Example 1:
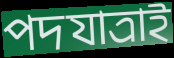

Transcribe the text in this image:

পদযাত্রাই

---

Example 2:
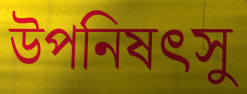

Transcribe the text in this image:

উপনিষৎসু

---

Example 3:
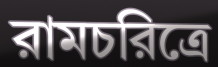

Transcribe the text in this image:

রামচরিত্রে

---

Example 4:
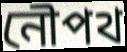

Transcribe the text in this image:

নৌপথ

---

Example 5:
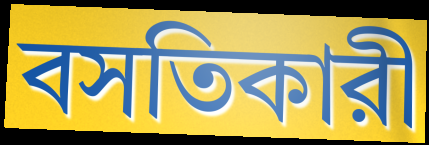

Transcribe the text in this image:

বসতিকারী